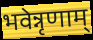
भवेन्नृणाम्